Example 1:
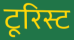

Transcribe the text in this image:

टूरिस्ट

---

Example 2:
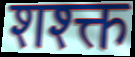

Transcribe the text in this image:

शश्क्त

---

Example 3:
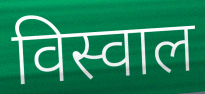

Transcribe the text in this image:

विस्वाल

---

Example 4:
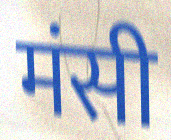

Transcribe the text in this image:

मंसी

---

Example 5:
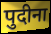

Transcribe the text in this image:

पुदीना